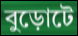
বুড়োটে